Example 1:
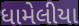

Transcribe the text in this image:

ધામેલીયા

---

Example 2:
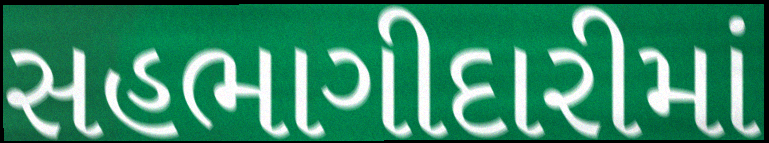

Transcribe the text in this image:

સહભાગીદારીમાં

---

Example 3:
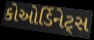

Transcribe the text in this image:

કોઓર્ડિનેટ્સ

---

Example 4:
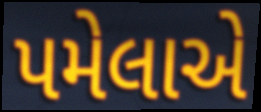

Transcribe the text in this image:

પમેલાએ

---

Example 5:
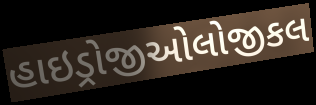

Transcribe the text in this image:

હાઇડ્રોજીઓલોજીકલ